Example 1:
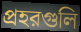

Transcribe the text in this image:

প্রহরগুলি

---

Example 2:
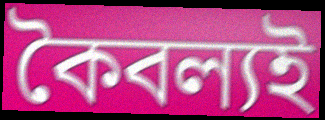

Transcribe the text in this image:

কৈবল্যই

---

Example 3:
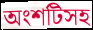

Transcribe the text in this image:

অংশটিসহ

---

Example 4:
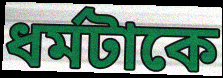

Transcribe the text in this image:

ধর্মটাকে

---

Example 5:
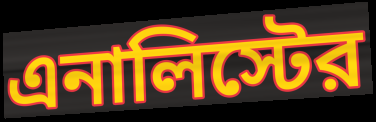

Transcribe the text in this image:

এনালিস্টের